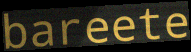
bareete